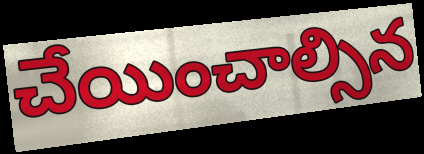
చేయించాల్సిన